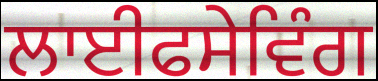
ਲਾਈਫਸੇਵਿੰਗ